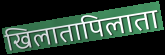
खिलातापिलाता